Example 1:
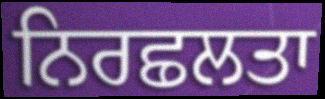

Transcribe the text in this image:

ਨਿਰਛਲਤਾ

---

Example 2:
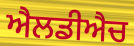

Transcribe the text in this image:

ਐਲਡੀਐਚ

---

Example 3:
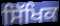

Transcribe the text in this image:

ਸਿੱਖਿਕ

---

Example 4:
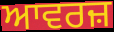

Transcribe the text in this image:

ਆਵਰਜ਼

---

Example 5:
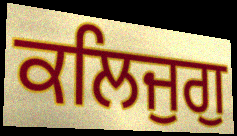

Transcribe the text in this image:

ਕਲਿਜੁਗੁ